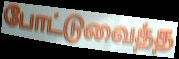
போட்டுவைத்த